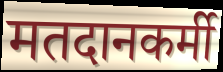
मतदानकर्मी